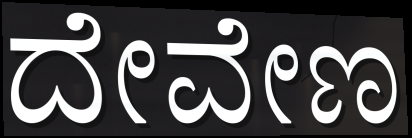
ದೇವೇಣ